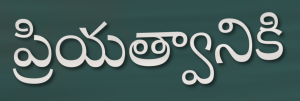
ప్రియత్వానికి